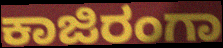
ಕಾಜಿರಂಗಾ